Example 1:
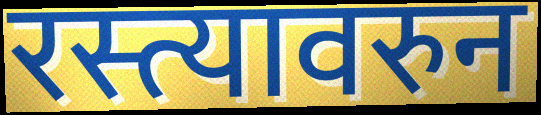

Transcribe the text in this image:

रस्त्यावरुन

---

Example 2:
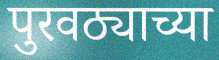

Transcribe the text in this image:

पुरवठ्याच्या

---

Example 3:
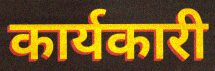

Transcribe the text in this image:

कार्यकारी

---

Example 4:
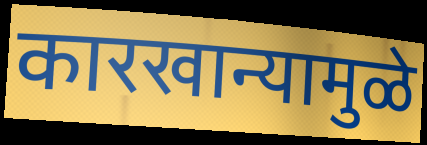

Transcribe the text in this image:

कारखान्यामुळे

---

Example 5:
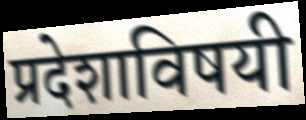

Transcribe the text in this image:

प्रदेशाविषयी